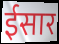
ईसार